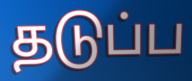
தடுப்ப